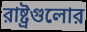
রাষ্ট্রগুলোর